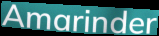
Amarinder